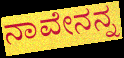
ನಾವೇನನ್ನ